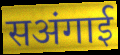
सअंगाई